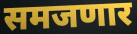
समजणार